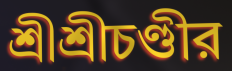
শ্রীশ্রীচণ্ডীর